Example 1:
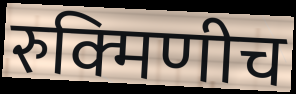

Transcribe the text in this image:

रुक्मिणीच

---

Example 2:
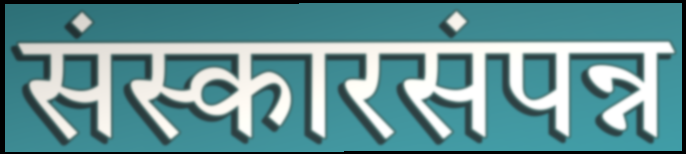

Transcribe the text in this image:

संस्कारसंपन्न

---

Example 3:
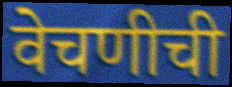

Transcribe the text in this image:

वेचणीची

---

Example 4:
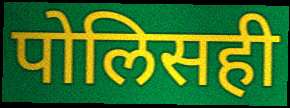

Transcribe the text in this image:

पोलिसही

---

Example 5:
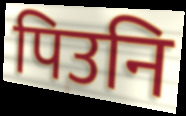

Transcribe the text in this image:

पिउनि